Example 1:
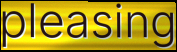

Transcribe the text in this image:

pleasing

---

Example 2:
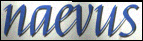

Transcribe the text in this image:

naevus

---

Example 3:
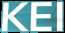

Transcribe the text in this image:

KEI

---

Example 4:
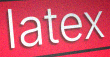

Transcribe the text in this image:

latex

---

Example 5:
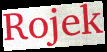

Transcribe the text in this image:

Rojek